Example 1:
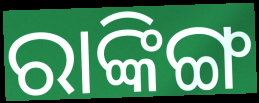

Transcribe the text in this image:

ରାଙ୍କିଙ୍ଗ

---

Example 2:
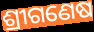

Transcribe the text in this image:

ଶ୍ରୀଗଣେଷ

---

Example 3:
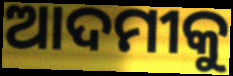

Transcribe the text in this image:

ଆଦମୀକୁ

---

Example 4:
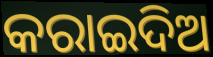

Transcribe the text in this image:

କରାଇଦିଅ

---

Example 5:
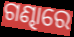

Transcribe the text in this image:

ଗଣ୍ଢାରେ